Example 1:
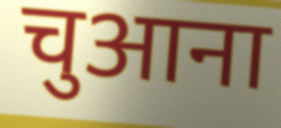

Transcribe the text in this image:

चुआना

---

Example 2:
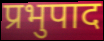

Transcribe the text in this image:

प्रभुपाद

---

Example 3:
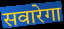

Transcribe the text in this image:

सवारेगा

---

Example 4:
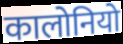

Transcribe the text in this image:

कालोनियो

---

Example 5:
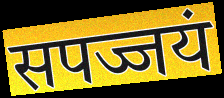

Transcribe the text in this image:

सपज्जयं